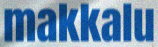
makkalu